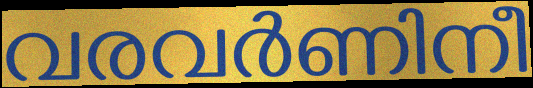
വരവർണിനീ